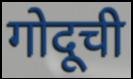
गोदूची